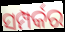
ସମ୍ପର୍କର